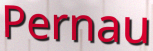
Pernau